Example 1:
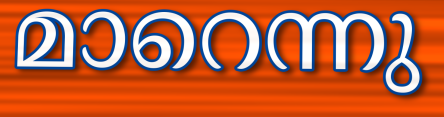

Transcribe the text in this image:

മാറെന്നു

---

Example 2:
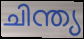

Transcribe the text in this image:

ചിന്ത്യ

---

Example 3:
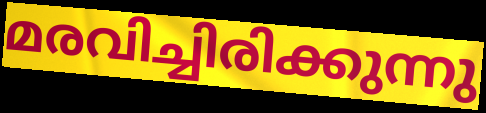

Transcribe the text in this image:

മരവിച്ചിരിക്കുന്നു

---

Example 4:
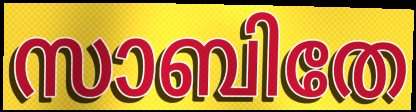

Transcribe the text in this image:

സാബിതേ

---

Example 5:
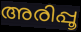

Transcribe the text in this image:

അരിപ്പൂ